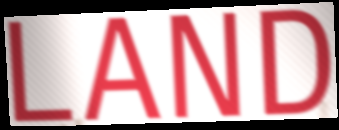
LAND